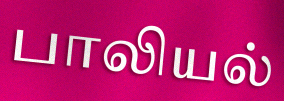
பாலியல்